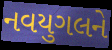
નવયુગલને